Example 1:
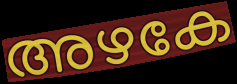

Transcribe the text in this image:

അഴകേ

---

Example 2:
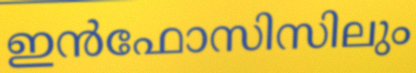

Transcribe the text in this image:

ഇൻഫോസിസിലും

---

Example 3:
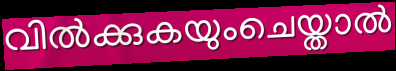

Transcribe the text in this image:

വിൽക്കുകയുംചെയ്താൽ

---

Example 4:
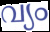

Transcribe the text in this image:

വ്യം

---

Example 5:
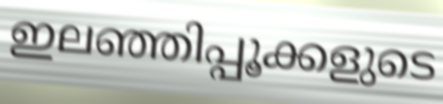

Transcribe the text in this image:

ഇലഞ്ഞിപ്പൂക്കളുടെ